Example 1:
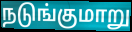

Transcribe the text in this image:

நடுங்குமாறு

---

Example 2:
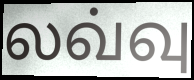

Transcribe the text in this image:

லவ்வு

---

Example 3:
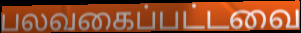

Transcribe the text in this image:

பலவகைப்பட்டவை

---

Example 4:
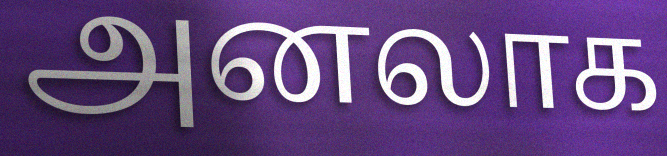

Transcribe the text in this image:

அனலாக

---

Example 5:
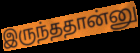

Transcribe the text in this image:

இருந்ததான்னு